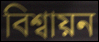
বিশ্বায়ন